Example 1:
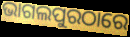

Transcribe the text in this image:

ଭାଗଲପୁରଠାରେ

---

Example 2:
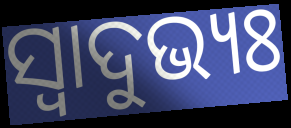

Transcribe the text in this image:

ସ୍ବାଦୁଭ୍ୟଃ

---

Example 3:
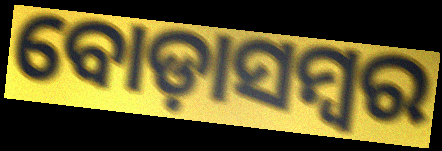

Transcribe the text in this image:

ବୋଡ଼ାସମ୍ବର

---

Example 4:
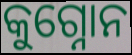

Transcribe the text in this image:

କୁଗ୍ନୋନ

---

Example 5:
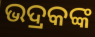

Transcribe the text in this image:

ଭଦ୍ରକଙ୍କ